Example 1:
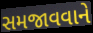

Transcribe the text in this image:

સમજાવવાને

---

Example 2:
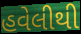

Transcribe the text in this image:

હવેલીથી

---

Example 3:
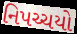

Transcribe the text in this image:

નિપચ્ચયો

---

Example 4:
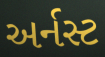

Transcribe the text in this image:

અર્નસ્ટ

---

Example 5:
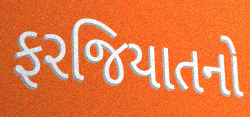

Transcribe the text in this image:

ફરજિયાતનો